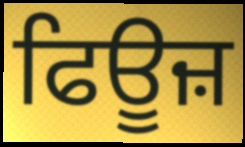
ਫਿਊਜ਼